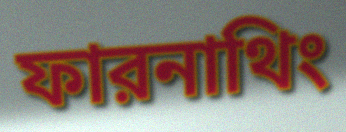
ফারনাথিং